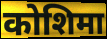
कोशिमा